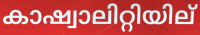
കാഷ്വാലിറ്റിയില്